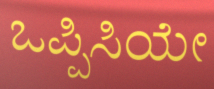
ಒಪ್ಪಿಸಿಯೇ